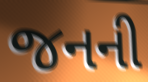
જનની